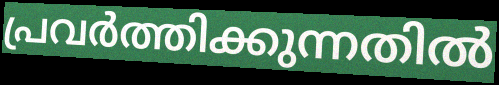
പ്രവർത്തിക്കുന്നതിൽ